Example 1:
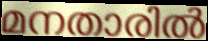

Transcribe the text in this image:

മനതാരിൽ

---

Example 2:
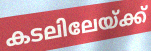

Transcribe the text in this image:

കടലിലേയ്ക്ക്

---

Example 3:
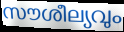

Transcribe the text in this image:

സൗശീല്യവും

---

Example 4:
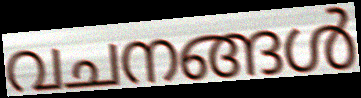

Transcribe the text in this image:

വചനങ്ങൾ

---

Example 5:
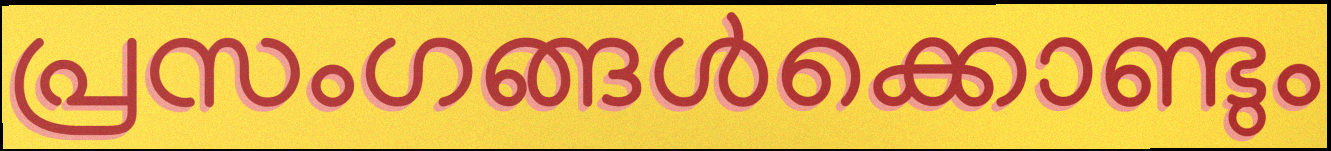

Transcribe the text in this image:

പ്രസംഗങ്ങൾക്കൊണ്ടും